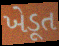
ખેડૂત